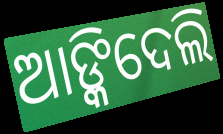
ଆଙ୍କିଦେଲି